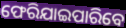
ଫେରିଯାଇପାରିବେ